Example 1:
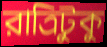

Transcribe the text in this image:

রাত্রিটুকু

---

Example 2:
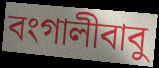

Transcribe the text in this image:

বংগালীবাবু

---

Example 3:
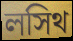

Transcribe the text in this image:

লসিথ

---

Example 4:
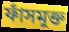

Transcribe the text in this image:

ফাঁসমুক্ত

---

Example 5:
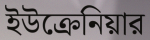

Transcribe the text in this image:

ইউক্রেনিয়ার